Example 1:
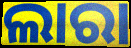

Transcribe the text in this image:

ଲାରା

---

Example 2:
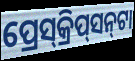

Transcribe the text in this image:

ପ୍ରେସ୍‌କ୍ରିପ୍‌ସନ୍‌ଟା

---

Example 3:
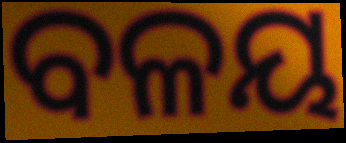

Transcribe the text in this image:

ବଳୟ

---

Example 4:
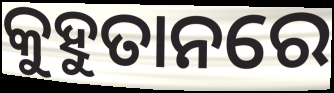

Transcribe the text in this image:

କୁହୁତାନରେ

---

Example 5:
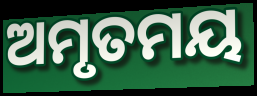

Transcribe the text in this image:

ଅମୃତମୟ